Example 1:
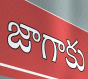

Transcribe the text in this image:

జాగాకు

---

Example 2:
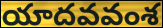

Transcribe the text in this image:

యాదవవంశ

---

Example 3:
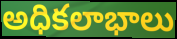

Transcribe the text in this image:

అధికలాభాలు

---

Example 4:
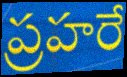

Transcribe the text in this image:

ప్రహరే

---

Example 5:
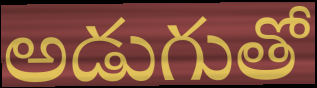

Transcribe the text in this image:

అడుగుతో